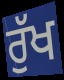
ਰੁੱਖ